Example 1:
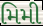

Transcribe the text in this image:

મિમી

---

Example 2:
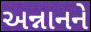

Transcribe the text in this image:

અન્નાનને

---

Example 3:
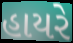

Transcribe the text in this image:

હાયરે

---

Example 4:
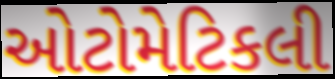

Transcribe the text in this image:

ઓટોમેટિકલી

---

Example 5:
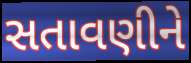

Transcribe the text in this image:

સતાવણીને